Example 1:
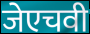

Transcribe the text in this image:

जेएचवी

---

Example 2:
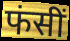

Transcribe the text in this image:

फंसीं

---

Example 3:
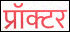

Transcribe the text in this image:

प्रॉक्टर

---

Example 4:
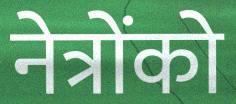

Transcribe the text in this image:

नेत्रोंको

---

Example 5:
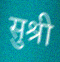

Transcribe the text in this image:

सुश्री